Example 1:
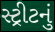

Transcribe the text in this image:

સ્ટ્રીટનું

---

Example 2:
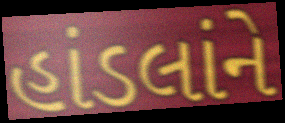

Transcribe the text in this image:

હાંડલાંને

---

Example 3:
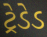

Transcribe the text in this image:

ટ્રેડેડ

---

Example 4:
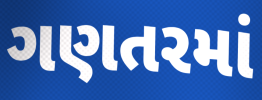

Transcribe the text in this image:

ગણતરમાં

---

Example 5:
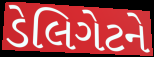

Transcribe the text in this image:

ડેલિગેટને